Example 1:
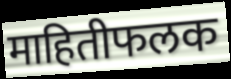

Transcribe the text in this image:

माहितीफलक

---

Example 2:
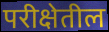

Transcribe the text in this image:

परीक्षेतील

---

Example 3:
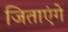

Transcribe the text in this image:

जिताएंगे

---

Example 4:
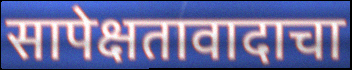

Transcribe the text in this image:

सापेक्षतावादाचा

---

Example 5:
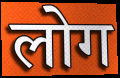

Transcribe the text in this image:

लोग